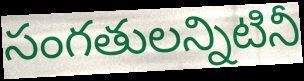
సంగతులన్నిటినీ